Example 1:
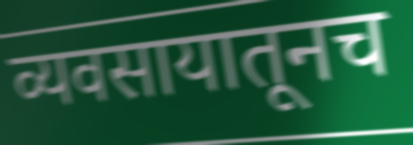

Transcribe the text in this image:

व्यवसायातूनच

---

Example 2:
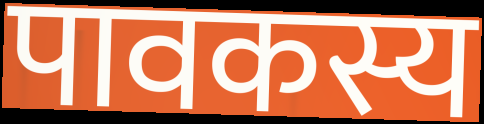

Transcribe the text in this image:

पावकस्य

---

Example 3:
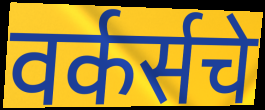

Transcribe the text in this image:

वर्कर्सचे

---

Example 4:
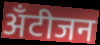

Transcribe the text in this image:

अँटीजन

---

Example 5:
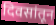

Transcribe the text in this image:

दिवसांतून